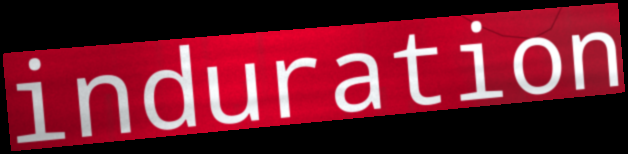
induration